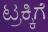
ಟ್ರಕ್ಕಿಗೆ